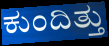
ಕುಂದಿತ್ತು